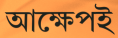
আক্ষেপই